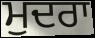
ਮੁਦਰਾ